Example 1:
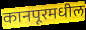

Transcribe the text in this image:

कानपूरमधील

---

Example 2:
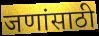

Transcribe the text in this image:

जणांसाठी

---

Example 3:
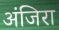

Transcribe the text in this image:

अंजिरा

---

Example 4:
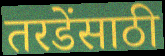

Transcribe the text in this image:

तरडेंसाठी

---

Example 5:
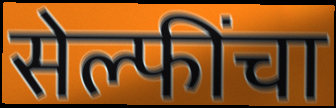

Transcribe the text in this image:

सेल्फींचा